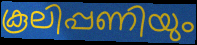
കൂലിപ്പണിയും